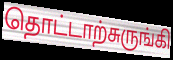
தொட்டாற்சுருங்கி